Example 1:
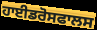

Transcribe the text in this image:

ਹਾਈਡਰੋਸਫਾਲਸ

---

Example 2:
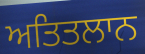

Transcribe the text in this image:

ਅਤਿਤਲਾਨ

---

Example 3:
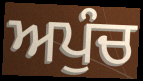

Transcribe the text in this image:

ਅਪੁੰਚ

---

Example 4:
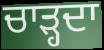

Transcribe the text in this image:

ਚਾੜ੍ਹਦਾ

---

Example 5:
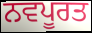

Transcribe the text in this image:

ਨਵਪੂਰਤ